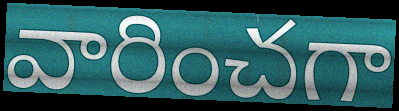
వారించగా